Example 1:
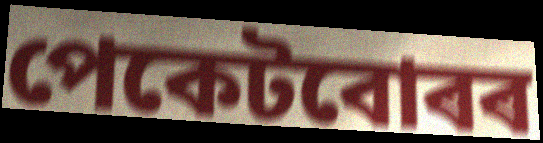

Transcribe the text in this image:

পেকেটবোৰৰ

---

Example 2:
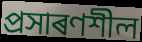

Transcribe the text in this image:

প্ৰসাৰণশীল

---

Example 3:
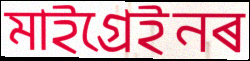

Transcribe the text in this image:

মাইগ্ৰেইনৰ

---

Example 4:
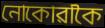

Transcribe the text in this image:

নোকোৱাকৈ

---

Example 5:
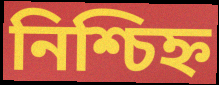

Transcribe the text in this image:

নিশ্চিহ্ন